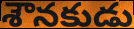
శౌనకుడు